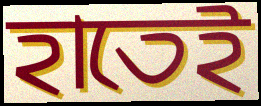
হাতেই